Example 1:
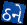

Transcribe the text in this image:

ઠને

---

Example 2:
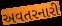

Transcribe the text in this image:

અવતરનારી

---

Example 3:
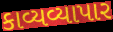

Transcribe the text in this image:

કાવ્યવ્યાપાર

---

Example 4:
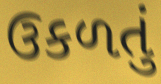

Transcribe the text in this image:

ઉકળતું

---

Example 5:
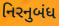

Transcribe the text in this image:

નિરનુબંધ